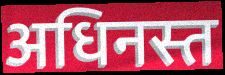
अधिनस्त